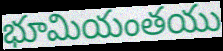
భూమియంతయు